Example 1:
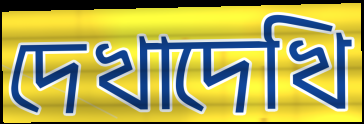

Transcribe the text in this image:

দেখাদেখি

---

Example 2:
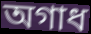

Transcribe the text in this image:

অগাধ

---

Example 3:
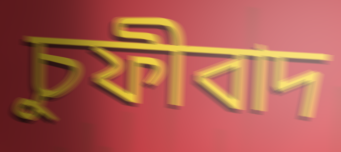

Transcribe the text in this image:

চুফীবাদ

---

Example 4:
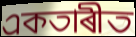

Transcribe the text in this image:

একতাৰীত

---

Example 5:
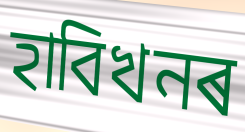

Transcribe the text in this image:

হাবিখনৰ